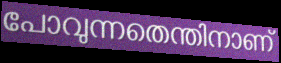
പോവുന്നതെന്തിനാണ്